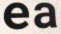
ea